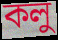
কলু